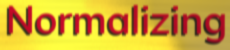
Normalizing